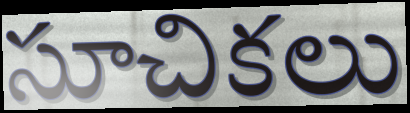
సూచికలు